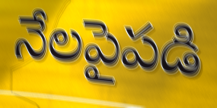
నేలపైపడి